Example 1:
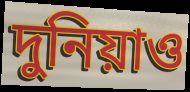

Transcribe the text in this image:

দুনিয়াও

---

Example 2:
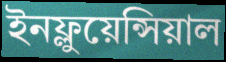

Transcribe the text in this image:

ইনফ্লুয়েন্সিয়াল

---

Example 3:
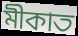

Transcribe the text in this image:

মীকাত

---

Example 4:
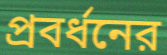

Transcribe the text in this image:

প্রবর্ধনের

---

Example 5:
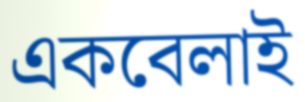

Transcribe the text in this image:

একবেলাই